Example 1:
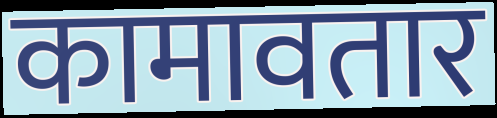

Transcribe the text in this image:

कामावतार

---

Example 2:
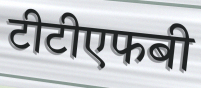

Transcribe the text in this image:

टीटीएफबी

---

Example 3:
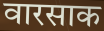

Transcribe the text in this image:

वारसाक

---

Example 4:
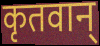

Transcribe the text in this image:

कृतवान्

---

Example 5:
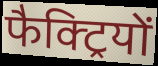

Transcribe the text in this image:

फैक्ट्रियों